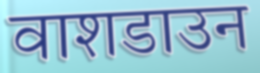
वाशडाउन